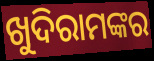
ଖୁଦିରାମଙ୍କର